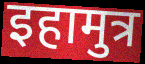
इहामुत्र